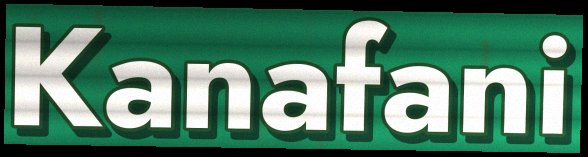
Kanafani